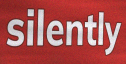
silently